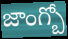
జాంగ్బో